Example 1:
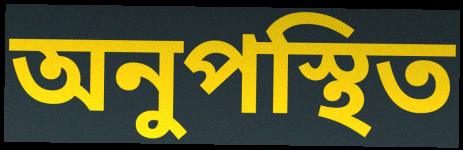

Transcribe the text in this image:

অনুপস্থিত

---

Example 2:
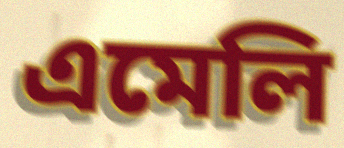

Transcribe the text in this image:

এমেলি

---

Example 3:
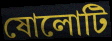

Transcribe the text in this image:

ষোলোটি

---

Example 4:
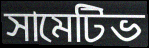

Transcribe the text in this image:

সামেটিভ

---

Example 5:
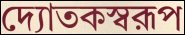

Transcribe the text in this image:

দ্যোতকস্বরূপ